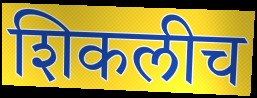
शिकलीच